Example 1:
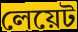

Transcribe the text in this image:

লেয়েট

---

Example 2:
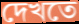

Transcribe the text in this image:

দেখতে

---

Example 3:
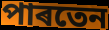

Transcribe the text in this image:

পাৰতেন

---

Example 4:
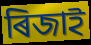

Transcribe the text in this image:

ৰিজাই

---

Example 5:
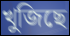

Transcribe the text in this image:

খুজিছে